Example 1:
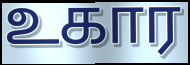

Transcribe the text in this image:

உகார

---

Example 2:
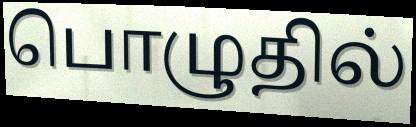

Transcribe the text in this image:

பொழுதில்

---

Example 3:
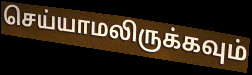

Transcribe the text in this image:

செய்யாமலிருக்கவும்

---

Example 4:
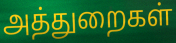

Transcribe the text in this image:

அத்துறைகள்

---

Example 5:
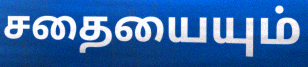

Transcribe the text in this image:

சதையையும்